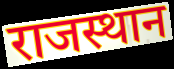
राजस्थान